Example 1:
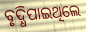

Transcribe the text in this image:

ବୃଦ୍ଧିପାଇଥିଲେ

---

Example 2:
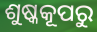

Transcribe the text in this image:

ଶୁଷ୍କକୂପରୁ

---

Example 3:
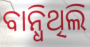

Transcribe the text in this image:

ବାନ୍ଧିଥିଲି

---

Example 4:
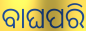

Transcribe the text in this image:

ବାଘପରି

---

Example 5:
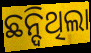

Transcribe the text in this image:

ଛନ୍ଦିଥିଲା